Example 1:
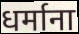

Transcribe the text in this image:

धर्माना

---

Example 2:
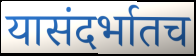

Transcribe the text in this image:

यासंदर्भातच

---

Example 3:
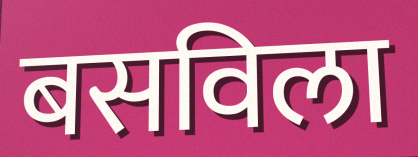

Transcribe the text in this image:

बसविला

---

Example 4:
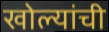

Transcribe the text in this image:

खोल्यांची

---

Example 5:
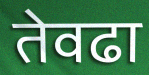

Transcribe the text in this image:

तेवढा